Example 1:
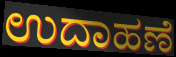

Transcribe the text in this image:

ಉದಾಹಣೆ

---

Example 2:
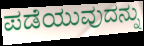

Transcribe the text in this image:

ಪಡೆಯುವುದನ್ನು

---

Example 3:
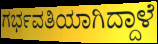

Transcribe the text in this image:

ಗರ್ಭವತಿಯಾಗಿದ್ದಾಳೆ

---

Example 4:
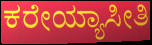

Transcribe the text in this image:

ಕರೇಯ್ಯಾಸೀತಿ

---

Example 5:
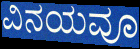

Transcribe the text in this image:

ವಿನಯವೂ